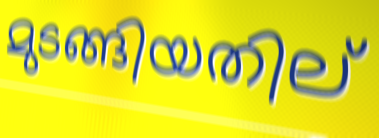
മുടങ്ങിയതില്